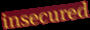
insecured